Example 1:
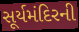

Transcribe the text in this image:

સૂર્યમંદિરની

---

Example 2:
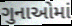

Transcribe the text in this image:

ગુનાઓમાં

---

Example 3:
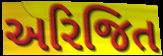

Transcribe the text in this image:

અરિજિત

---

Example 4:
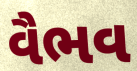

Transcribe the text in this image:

વૈભવ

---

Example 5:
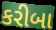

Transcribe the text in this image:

કરીબા